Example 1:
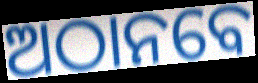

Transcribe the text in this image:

ଅଠାନବେ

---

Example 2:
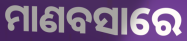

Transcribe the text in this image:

ମାଣବସାରେ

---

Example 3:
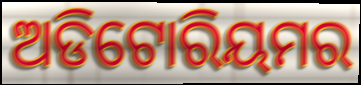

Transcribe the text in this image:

ଅଡିଟୋରିୟମର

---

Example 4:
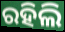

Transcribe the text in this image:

ରହିଲି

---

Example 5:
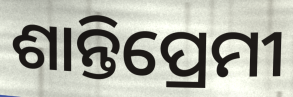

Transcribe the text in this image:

ଶାନ୍ତିପ୍ରେମୀ